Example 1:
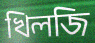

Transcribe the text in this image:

খিলজি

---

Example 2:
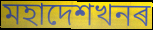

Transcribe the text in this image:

মহাদেশখনৰ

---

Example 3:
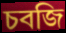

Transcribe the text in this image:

চবজি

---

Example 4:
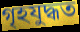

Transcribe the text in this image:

গৃহযুদ্ধত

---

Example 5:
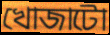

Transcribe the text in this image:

খোজাটো